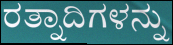
ರತ್ನಾದಿಗಳನ್ನು